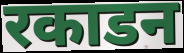
रकाडन